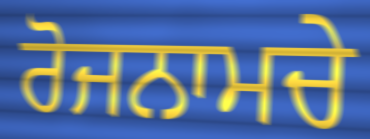
ਰੋਜਨਾਮਚੇ